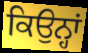
ਕਿਉਨ੍ਹਾਂ